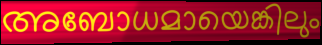
അബോധമായെങ്കിലും